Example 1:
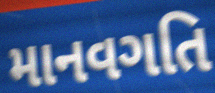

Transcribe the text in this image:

માનવગતિ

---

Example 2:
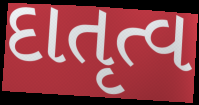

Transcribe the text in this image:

દાતૃત્વ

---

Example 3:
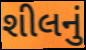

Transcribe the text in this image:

શીલનું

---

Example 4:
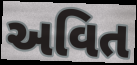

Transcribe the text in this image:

અવિત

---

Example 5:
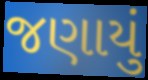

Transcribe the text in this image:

જણાયું